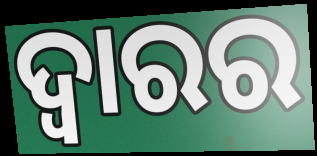
ଦ୍ୱାରର